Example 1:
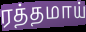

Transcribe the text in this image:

ரத்தமாய்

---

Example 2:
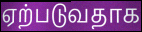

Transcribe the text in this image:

ஏற்படுவதாக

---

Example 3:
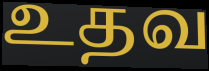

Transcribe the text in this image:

உதவ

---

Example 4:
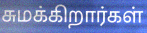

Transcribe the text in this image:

சுமக்கிறார்கள்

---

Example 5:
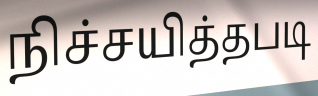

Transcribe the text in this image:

நிச்சயித்தபடி